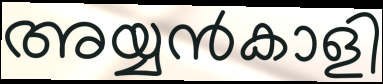
അയ്യൻകാളി